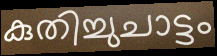
കുതിച്ചുചാട്ടം